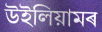
উইলিয়ামৰ